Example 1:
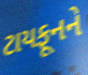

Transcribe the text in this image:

ટાયફૂનને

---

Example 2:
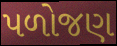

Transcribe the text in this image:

પળોજણ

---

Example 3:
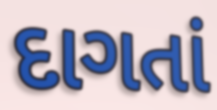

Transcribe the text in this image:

દાગતાં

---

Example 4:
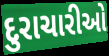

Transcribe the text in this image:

દુરાચારીઓ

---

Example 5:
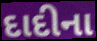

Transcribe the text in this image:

દાદીના